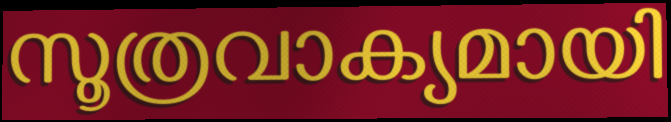
സൂത്രവാക്യമായി